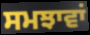
ਸਮਝਾਵਾਂ